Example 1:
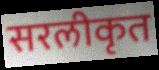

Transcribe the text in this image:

सरलीकृत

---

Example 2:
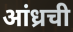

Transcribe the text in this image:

आंध्रची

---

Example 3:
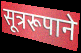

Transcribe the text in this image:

सूत्ररूपाने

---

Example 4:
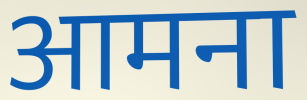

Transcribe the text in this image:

आमना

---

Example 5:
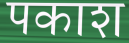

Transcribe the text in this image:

पकाश